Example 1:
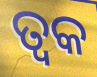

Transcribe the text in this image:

ତ୍ୱକ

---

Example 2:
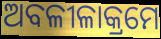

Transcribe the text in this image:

ଅବଳୀଳାକ୍ରମେ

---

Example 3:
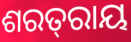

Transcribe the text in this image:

ଶରତ୍‌ରାୟ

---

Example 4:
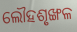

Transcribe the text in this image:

ଲୌହଶୃଙ୍ଖଳ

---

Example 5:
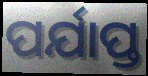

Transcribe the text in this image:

ପର୍ଯାପ୍ତ